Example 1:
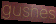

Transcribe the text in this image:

gushes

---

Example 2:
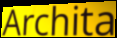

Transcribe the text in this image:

Archita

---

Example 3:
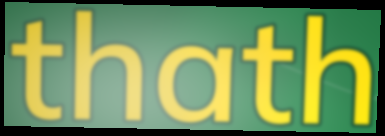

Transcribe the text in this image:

thath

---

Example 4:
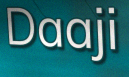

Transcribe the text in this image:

Daaji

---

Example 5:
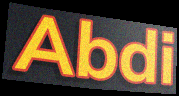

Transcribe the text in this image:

Abdi